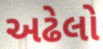
અઢેલો